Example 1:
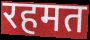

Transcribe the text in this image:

रहमत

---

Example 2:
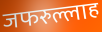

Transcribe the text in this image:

जफरुल्लाह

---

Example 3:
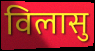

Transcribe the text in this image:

विलासु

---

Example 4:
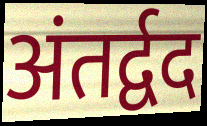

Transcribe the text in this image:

अंतर्द्वद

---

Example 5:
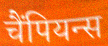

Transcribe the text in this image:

चैंपियन्स